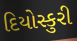
દિયોસ્કુરી